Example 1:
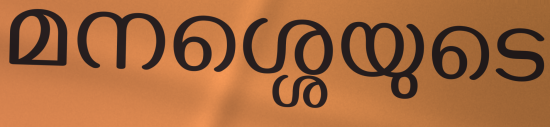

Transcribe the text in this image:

മനശ്ശെയുടെ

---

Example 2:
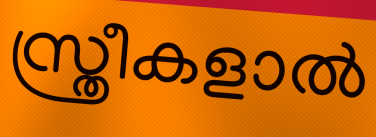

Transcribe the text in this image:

സ്ത്രീകളാൽ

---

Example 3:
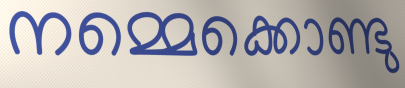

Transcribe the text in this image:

നമ്മെക്കൊണ്ടു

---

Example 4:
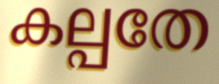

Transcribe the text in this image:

കല്പതേ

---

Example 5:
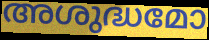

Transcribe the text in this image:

അശുദ്ധമോ